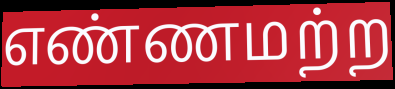
எண்ணமற்ற